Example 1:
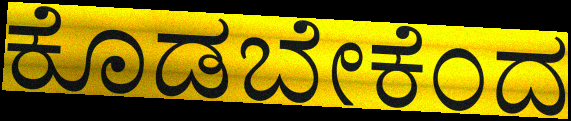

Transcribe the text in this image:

ಕೊಡಬೇಕೆಂದ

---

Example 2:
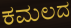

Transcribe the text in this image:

ಕಮಲದ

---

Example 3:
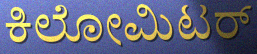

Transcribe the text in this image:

ಕಿಲೋಮಿಟರ್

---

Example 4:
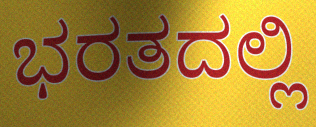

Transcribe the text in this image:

ಭರತದಲ್ಲಿ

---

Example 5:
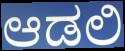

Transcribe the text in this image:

ಆಡಲಿ